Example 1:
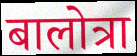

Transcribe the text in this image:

बालोत्रा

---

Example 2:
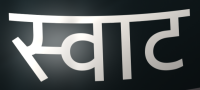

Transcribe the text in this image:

स्वाट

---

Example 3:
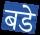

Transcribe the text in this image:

बडे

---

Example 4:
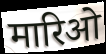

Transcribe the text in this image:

मारिओ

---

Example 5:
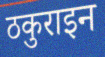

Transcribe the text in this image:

ठकुराइन